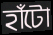
হাঁটো